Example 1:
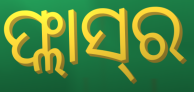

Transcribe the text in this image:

ଫ୍ଲାସ୍‌ର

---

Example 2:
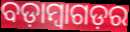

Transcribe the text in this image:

ବଡ଼ାମ୍ବାଗଡ଼ର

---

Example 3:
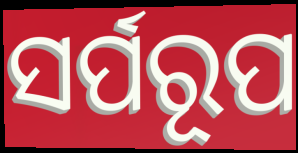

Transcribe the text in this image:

ସର୍ପରୂପ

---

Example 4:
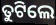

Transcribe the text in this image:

ତୁଟିଲେ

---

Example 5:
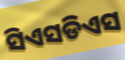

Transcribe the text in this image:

ସିଏସଡିଏସ